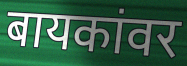
बायकांवर